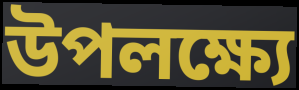
উপলক্ষ্যে